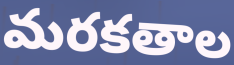
మరకతాల